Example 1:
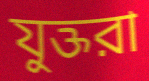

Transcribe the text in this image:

যুক্তরা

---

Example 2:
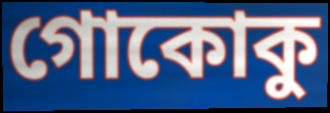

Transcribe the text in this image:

গোকোকু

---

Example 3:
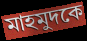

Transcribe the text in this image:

মাহমুদকে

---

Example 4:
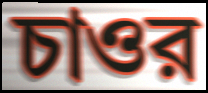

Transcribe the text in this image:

চাওর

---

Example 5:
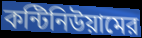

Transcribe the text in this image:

কন্টিনিউয়ামের